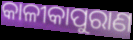
କାଳୀକାପୁରାଣ